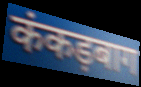
कंकड़बाग